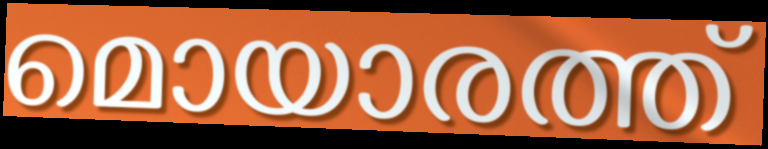
മൊയാരത്ത്